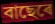
বাছেৰে